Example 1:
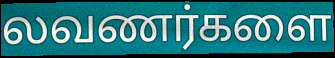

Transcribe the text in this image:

லவணர்களை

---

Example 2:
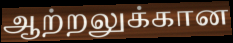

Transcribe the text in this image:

ஆற்றலுக்கான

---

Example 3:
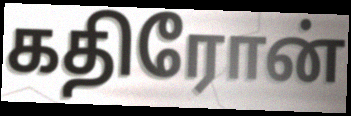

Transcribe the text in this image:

கதிரோன்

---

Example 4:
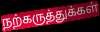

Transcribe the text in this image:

நற்கருத்துக்கள்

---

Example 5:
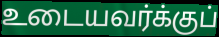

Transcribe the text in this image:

உடையவர்க்குப்